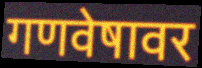
गणवेषावर